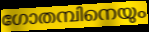
ഗോതമ്പിനെയും